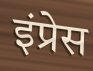
इंप्रेस